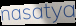
nasatya